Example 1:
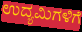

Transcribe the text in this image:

ಉದ್ಯಮಿಗಳಿಗೆ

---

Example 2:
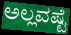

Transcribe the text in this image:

ಅಲ್ಲವಷ್ಟೆ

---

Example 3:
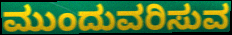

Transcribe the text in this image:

ಮುಂದುವರಿಸುವ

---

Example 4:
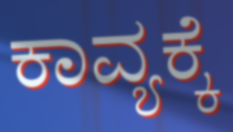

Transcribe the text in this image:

ಕಾವ್ಯಕ್ಕೆ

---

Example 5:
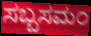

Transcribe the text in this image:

ಸಬ್ಬಸಮಂ